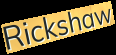
Rickshaw